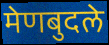
मेणबुदले